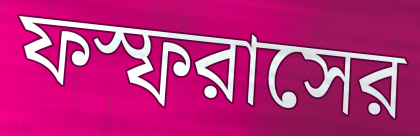
ফস্ফরাসের